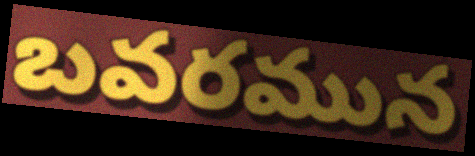
బవరమున